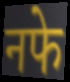
नफे